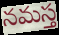
నమస్త